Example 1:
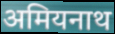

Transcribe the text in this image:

अमियनाथ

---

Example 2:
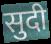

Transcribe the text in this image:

सुदी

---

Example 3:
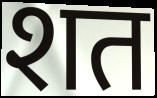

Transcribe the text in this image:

शत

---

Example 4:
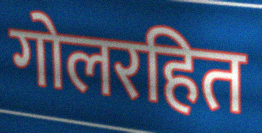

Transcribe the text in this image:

गोलरहित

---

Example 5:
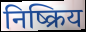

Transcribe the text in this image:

निष्क्रिय